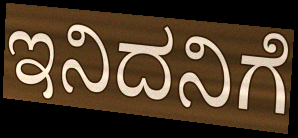
ಇನಿದನಿಗೆ